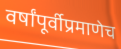
वर्षांपूर्वीप्रमाणेच